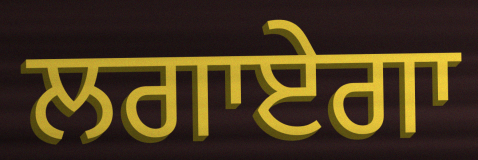
ਲਗਾਏਗਾ